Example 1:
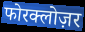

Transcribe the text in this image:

फोरक्लोज़र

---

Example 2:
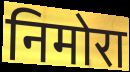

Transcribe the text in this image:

निमोरा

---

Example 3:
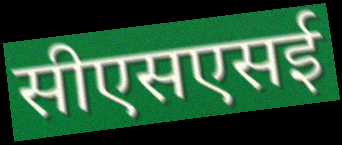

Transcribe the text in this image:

सीएसएसई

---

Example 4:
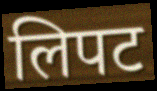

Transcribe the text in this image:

लिपट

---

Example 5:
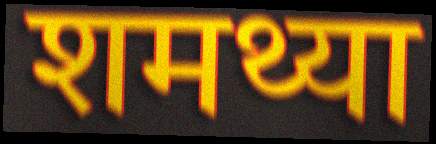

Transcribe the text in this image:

शमथ्या